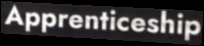
Apprenticeship